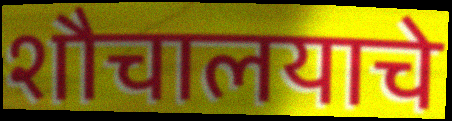
शौचालयाचे